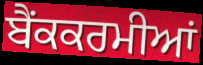
ਬੈਂਕਕਰਮੀਆਂ